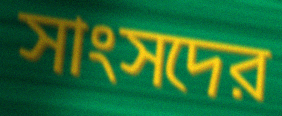
সাংসদের